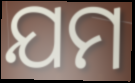
ଯମ